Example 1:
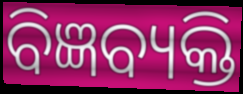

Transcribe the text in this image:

ବିଜ୍ଞବ୍ୟକ୍ତି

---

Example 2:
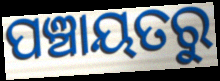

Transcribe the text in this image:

ପଞ୍ଚାୟତରୁ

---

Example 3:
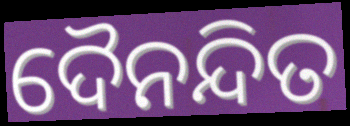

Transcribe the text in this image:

ଦୈନନ୍ଦିତ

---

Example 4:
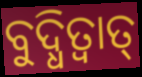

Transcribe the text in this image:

ବୁଦ୍ଧିତ୍ୱାତ୍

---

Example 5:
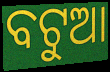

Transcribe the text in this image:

ବଟୁଆ